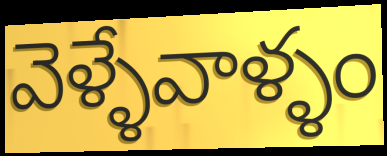
వెళ్ళేవాళ్ళం